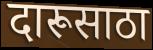
दारूसाठा